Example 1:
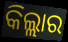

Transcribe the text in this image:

କିଲ୍ଲାର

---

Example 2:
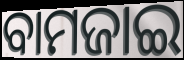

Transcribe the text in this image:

ବାମଜାଇ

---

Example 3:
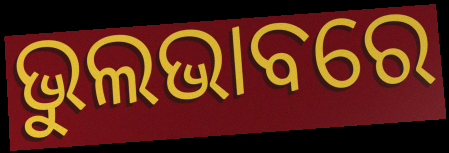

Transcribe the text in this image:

ଭୁଲଭାବରେ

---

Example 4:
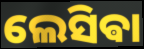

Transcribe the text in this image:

ଲେସିଵା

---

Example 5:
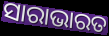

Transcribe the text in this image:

ସାରାଭାରତ